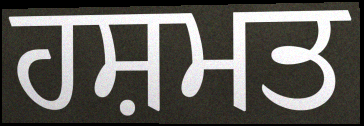
ਹਸ਼ਮਤ